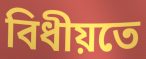
বিধীয়তে